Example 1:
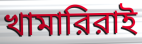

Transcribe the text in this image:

খামারিরাই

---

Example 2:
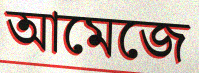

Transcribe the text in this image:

আমেজে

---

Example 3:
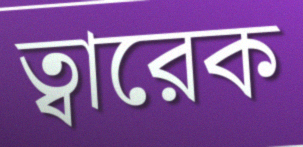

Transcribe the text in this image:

ত্বারেক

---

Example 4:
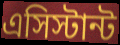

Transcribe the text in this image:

এসিস্টান্ট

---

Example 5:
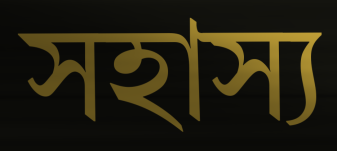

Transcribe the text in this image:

সহাস্য